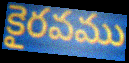
కైరవము